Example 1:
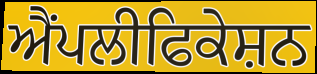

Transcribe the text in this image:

ਐਂਪਲੀਫਿਕੇਸ਼ਨ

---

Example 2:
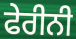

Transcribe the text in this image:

ਫੇਰੀਨੀ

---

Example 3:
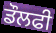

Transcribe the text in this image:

ਡੌਲਫੀ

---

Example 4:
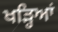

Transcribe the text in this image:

ਖੜ੍ਹਿਆਂ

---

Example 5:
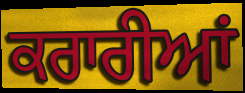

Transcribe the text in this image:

ਕਰਾਰੀਆਂ